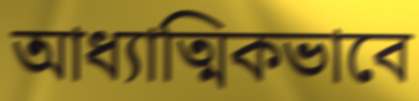
আধ্যাত্মিকভাবে